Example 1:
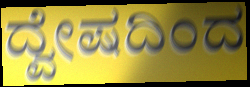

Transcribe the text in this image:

ದ್ವೇಷದಿಂದ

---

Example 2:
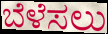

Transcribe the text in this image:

ಬೆಳೆಸಲು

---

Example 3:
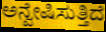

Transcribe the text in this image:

ಅನ್ವೇಷಿಸುತ್ತಿದೆ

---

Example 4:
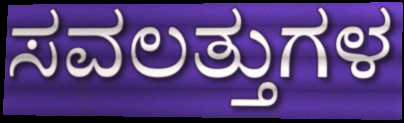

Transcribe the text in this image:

ಸವಲತ್ತುಗಳ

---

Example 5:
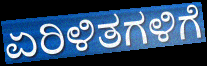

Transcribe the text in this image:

ಏರಿಳಿತಗಳಿಗೆ